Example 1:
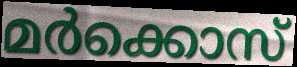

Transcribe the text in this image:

മർക്കൊസ്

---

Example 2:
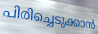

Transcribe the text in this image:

പിരിച്ചെടുക്കാൻ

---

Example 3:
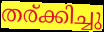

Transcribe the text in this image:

തര്ക്കിച്ചു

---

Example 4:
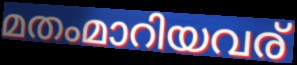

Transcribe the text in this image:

മതംമാറിയവര്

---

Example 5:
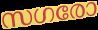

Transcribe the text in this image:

സഗരോ